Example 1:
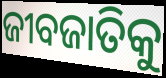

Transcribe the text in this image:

ଜୀବଜାତିକୁ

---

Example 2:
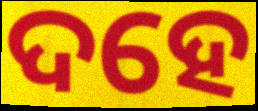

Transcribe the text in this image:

ଦହେ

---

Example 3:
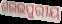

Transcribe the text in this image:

ଶରଭପୁରୀୟ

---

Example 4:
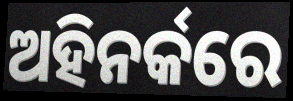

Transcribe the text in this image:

ଅହିନର୍କରେ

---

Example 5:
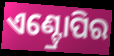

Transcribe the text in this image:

ଏଣ୍ଟ୍ରୋପିର